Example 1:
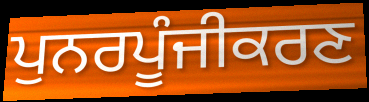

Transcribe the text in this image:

ਪੁਨਰਪੂੰਜੀਕਰਣ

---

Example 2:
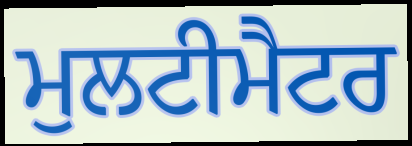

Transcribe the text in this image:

ਮੁਲਟੀਮੈਟਰ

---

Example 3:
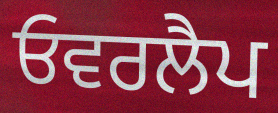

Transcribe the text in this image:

ਓਵਰਲੈਪ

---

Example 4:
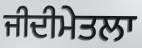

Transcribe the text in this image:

ਜੀਦੀਮੇਤਲਾ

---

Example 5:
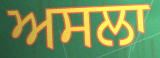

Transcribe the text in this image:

ਅਸਲਾ